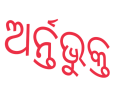
ଅର୍ନ୍ତଭୁକ୍ତ